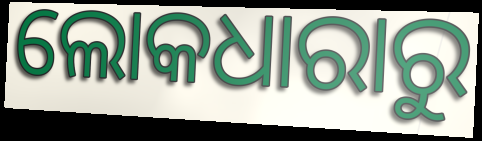
ଲୋକଧାରାରୁ